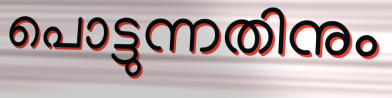
പൊട്ടുന്നതിനും